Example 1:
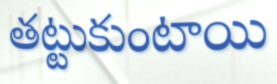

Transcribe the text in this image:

తట్టుకుంటాయి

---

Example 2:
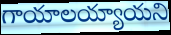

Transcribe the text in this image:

గాయాలయ్యాయని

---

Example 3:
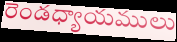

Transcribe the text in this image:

రెండధ్యాయములు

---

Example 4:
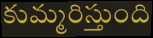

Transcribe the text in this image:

కుమ్మరిస్తుంది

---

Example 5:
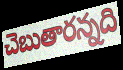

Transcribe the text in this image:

చెబుతారన్నది